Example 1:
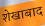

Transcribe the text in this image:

शेखाबाद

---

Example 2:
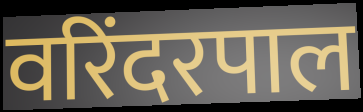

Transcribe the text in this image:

वरिंदरपाल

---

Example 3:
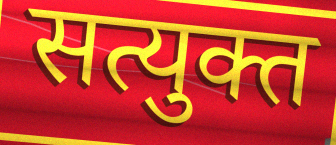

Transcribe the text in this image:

सत्युक्त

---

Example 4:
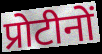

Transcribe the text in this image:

प्रोटीनों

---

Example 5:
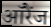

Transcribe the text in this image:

ऑरैंज